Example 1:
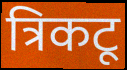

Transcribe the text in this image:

त्रिकटू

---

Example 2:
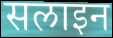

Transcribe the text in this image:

सलाइन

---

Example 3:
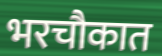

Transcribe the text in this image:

भरचौकात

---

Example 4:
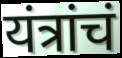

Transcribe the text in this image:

यंत्रांचं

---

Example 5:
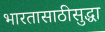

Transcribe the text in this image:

भारतासाठीसुद्धा